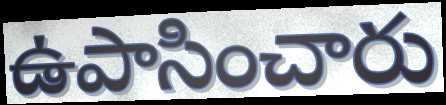
ఉపాసించారు